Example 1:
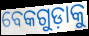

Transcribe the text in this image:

ବେକଗୁଡ଼ାକୁ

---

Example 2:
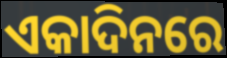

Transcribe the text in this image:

ଏକାଦିନରେ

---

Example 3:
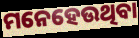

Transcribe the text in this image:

ମନେହେଉଥିବା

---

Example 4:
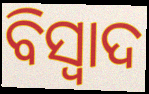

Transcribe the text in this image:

ବିସ୍ଵାଦ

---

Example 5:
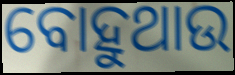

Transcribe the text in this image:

ବୋହୁଥାଉ